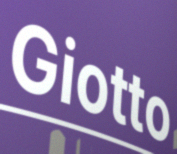
Giotto